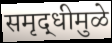
समृद्धीमुळे